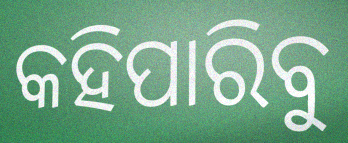
କହିପାରିବୁ